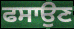
ਫਸਾਉਣ